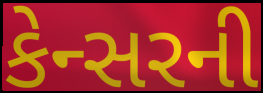
કેન્સરની